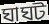
ঘাঘট